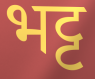
भट्ट